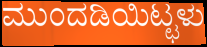
ಮುಂದಡಿಯಿಟ್ಟಳು